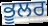
ਭੂਲਰ